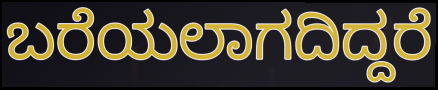
ಬರೆಯಲಾಗದಿದ್ದರೆ